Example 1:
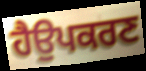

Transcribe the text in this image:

ਹੈਉਪਕਰਣ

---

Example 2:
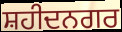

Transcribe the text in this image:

ਸ਼ਹੀਦਨਗਰ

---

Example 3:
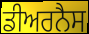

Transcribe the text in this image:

ਡੀਅਰਨੈਸ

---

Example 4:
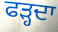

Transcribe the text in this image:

ਫੜ੍ਹਦਾ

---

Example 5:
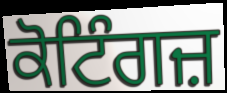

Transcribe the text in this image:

ਕੋਟਿੰਗਜ਼